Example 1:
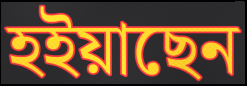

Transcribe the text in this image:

হইয়াছেন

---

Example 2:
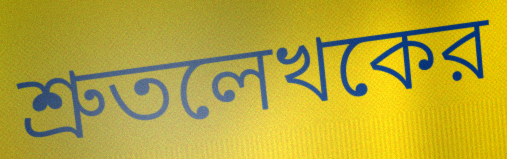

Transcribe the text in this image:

শ্রুতলেখকের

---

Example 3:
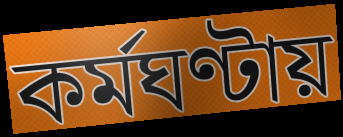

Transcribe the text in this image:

কর্মঘণ্টায়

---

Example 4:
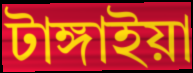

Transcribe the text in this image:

টাঙ্গাইয়া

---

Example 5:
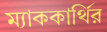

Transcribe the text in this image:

ম্যাককার্থির